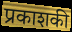
प्रकाशकी